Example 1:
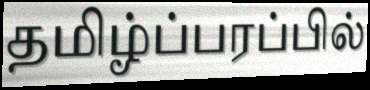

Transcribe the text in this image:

தமிழ்ப்பரப்பில்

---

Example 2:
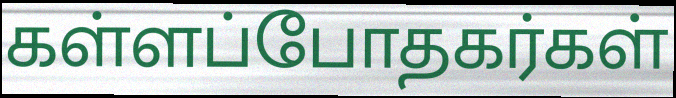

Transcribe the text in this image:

கள்ளப்போதகர்கள்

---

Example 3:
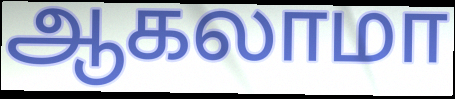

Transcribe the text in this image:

ஆகலாமா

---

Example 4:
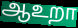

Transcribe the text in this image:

ஆஉறா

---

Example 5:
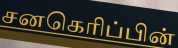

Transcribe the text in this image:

சனகெரிப்பின்